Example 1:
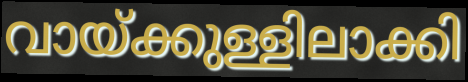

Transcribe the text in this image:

വായ്ക്കുള്ളിലാക്കി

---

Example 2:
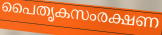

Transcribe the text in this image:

പൈതൃകസംരക്ഷണ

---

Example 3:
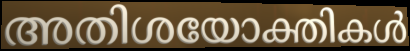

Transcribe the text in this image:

അതിശയോക്തികൾ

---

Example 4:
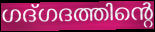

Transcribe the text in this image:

ഗദ്ഗദത്തിന്റെ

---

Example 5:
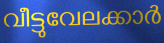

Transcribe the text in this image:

വീട്ടുവേലക്കാർ